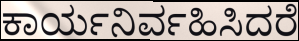
ಕಾರ್ಯನಿರ್ವಹಿಸಿದರೆ